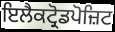
ਇਲੈਕਟ੍ਰੋਡਪੋਜ਼ਿਟ